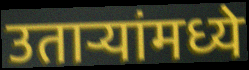
उतार्‍यांमध्ये